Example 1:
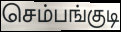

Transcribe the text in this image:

செம்பங்குடி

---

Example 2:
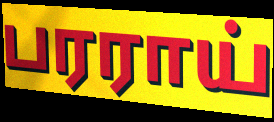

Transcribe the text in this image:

பரராய்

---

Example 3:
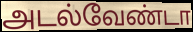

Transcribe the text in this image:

அடல்வேண்டா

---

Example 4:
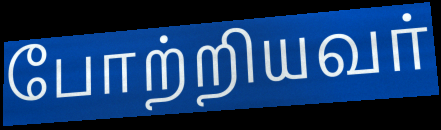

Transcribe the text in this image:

போற்றியவர்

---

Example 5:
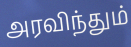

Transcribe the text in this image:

அரவிந்தும்